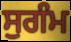
ਸੁਗੰਮ